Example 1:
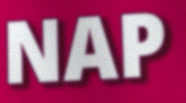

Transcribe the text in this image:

NAP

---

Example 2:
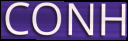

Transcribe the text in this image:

CONH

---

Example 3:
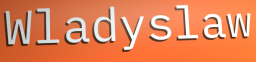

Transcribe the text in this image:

Wladyslaw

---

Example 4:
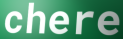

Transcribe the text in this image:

chere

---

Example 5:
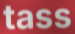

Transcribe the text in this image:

tass